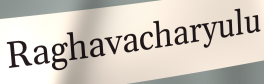
Raghavacharyulu